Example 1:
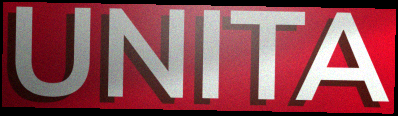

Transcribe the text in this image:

UNITA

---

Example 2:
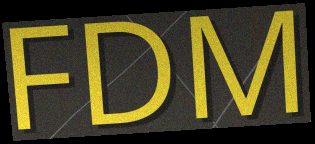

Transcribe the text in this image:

FDM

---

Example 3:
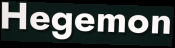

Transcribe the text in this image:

Hegemon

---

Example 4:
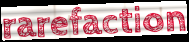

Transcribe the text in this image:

rarefaction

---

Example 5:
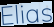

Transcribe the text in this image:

Elias